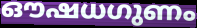
ഔഷധഗുണം